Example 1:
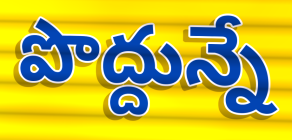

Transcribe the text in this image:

పొద్దున్నే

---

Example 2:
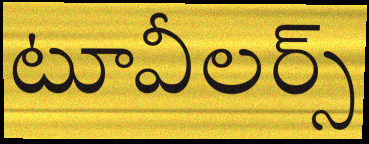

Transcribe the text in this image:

టూవీలర్స్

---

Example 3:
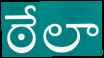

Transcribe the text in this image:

ఠేలా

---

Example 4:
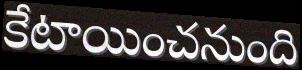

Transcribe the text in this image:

కేటాయించనుంది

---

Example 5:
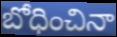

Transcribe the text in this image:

బోధించినా